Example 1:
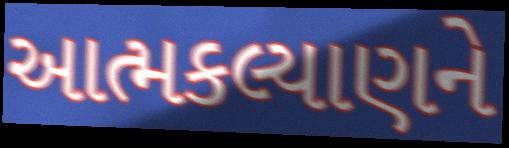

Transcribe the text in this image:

આત્મકલ્યાણને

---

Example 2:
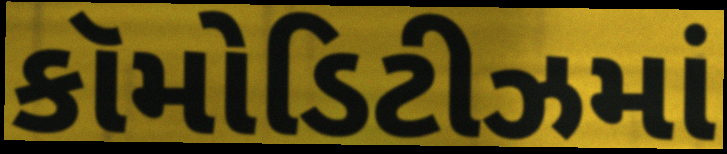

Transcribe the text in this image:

કૉમોડિટીઝમાં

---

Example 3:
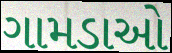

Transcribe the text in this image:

ગામડાઓ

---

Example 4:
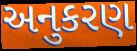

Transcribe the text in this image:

અનુકરણ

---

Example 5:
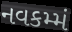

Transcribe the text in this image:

નવકમ્મં